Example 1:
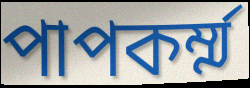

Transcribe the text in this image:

পাপকর্ম্ম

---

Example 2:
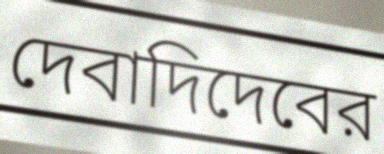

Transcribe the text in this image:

দেবাদিদেবের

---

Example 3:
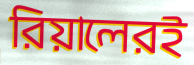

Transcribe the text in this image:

রিয়ালেরই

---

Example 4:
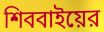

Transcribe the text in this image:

শিববাইয়ের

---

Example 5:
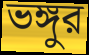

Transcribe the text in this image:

ভঙ্গুর